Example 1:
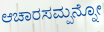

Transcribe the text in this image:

ಆಚಾರಸಮ್ಪನ್ನೋ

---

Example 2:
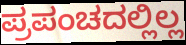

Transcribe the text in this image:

ಪ್ರಪಂಚದಲ್ಲಿಲ್ಲ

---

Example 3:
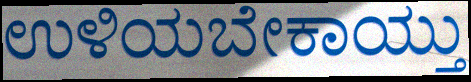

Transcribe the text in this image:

ಉಳಿಯಬೇಕಾಯ್ತು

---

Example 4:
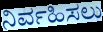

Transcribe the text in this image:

ನಿರ್ವಹಿಸಲು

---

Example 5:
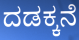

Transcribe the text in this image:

ದಡಕ್ಕನೆ